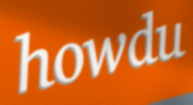
howdu